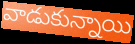
వాడుకున్నాయి